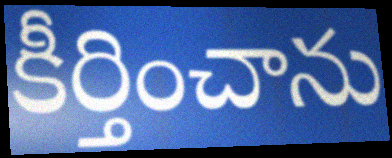
కీర్తించాను